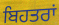
ਬਿਹਤਰਾਂ